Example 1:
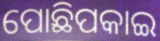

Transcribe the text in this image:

ପୋଛିପକାଇ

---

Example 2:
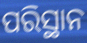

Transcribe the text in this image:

ପରିସ୍ଥାନ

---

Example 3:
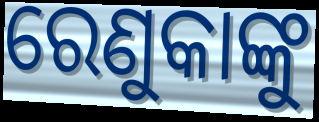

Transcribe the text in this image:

ରେଣୁକାଙ୍କୁ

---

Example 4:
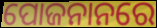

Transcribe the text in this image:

ପୋଜନାନରେ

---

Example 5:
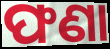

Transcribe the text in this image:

ଫଣା